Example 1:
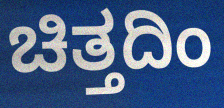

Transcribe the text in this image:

ಚಿತ್ತದಿಂ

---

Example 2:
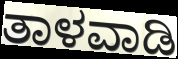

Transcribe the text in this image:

ತಾಳವಾಡಿ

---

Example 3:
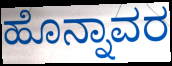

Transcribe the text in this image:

ಹೊನ್ನಾವರ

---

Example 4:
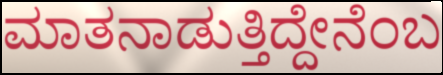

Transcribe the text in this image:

ಮಾತನಾಡುತ್ತಿದ್ದೇನೆಂಬ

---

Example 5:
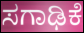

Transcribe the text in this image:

ಸಗಾಢಿಕೆ